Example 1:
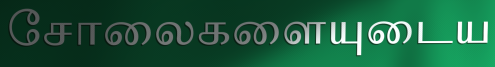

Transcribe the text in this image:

சோலைகளையுடைய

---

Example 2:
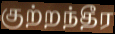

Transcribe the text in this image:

குற்றந்தீர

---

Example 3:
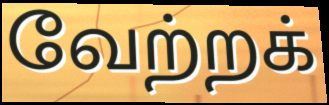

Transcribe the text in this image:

வேற்றக்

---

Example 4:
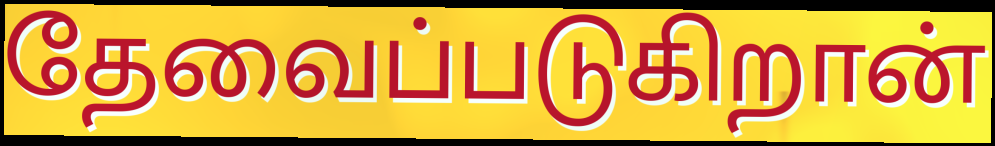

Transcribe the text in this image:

தேவைப்படுகிறான்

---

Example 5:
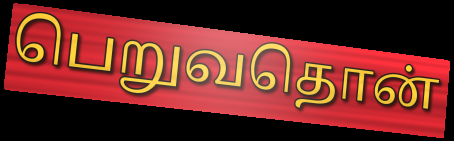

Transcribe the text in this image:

பெறுவதொன்